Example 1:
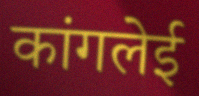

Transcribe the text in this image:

कांगलेई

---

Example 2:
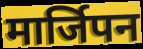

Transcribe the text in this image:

मार्जिपन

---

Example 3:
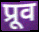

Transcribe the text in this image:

प्रूव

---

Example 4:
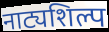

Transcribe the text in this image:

नाट्यशिल्प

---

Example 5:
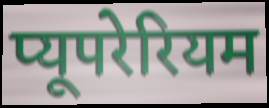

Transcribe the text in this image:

प्यूपरेरियम